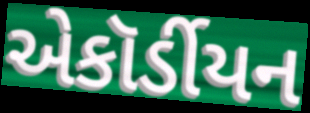
એકૉર્ડીયન